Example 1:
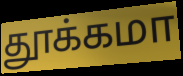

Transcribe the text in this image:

தூக்கமா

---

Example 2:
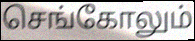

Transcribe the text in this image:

செங்கோலும்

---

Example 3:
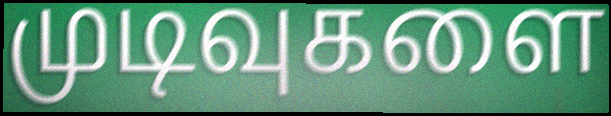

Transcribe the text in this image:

முடிவுகளை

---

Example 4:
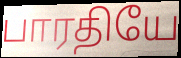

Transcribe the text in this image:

பாரதியே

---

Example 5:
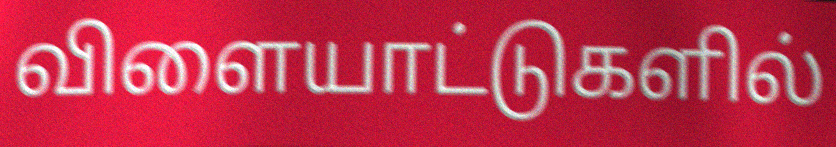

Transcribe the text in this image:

விளையாட்டுகளில்